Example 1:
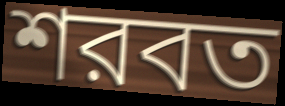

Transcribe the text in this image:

শরবত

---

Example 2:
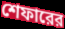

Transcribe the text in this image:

শেফারের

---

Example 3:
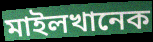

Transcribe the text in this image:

মাইলখানেক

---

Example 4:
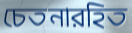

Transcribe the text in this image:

চেতনারহিত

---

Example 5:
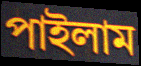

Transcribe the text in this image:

পাইলাম